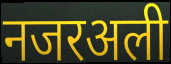
नजरअली